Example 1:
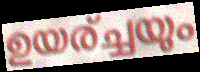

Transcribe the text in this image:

ഉയര്ച്ചയും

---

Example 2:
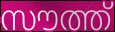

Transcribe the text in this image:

സൗത്ത്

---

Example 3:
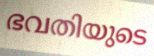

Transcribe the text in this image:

ഭവതിയുടെ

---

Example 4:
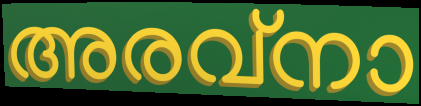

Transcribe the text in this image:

അരവ്നാ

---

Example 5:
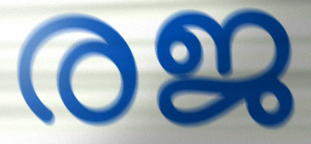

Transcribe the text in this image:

രജ